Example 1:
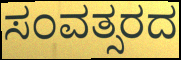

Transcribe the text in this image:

ಸಂವತ್ಸರದ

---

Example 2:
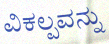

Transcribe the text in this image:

ವಿಕಲ್ಪವನ್ನು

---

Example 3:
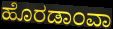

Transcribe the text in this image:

ಹೊರಡಾಂವಾ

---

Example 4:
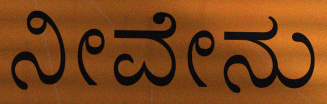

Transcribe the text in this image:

ನೀವೇನು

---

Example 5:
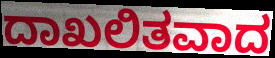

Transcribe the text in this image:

ದಾಖಲಿತವಾದ